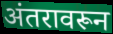
अंतरावरून